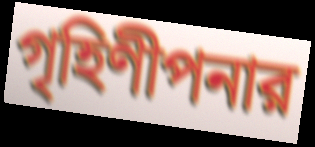
গৃহিণীপনার